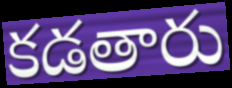
కడతారు